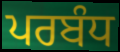
ਪਰਬੰਧ